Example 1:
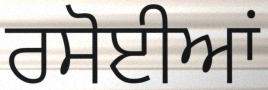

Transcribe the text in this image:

ਰਸੋਈਆਂ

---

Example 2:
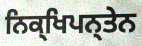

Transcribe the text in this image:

ਨਿਕ੍ਖਿਪਨ੍ਤੇਨ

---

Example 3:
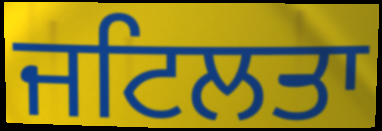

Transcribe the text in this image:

ਜਟਿਲਤਾ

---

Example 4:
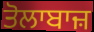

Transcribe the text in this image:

ਤੋਲਾਬਾਜ਼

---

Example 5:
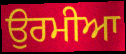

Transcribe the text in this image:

ਉਰਮੀਆ